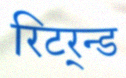
रिटर्न्ड